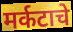
मर्कटाचे